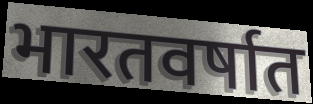
भारतवर्षात